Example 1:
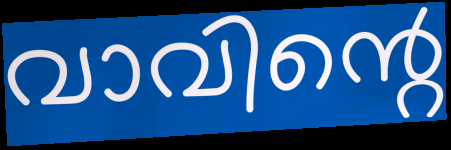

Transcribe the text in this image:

വാവിന്റെ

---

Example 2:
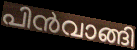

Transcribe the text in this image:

പിൻവാങ്ങി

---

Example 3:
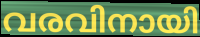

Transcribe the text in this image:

വരവിനായി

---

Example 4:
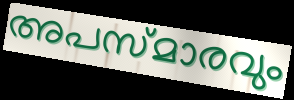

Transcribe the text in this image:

അപസ്മാരവും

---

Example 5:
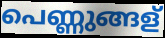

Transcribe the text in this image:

പെണ്ണുങ്ങള്